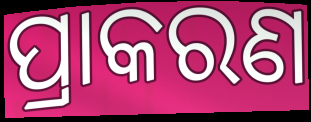
ପ୍ରାକରଣ